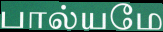
பால்யமே